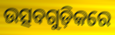
ଉତ୍ସବଗୁଡ଼ିକରେ